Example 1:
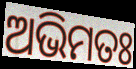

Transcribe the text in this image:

ଅଭିମତଃ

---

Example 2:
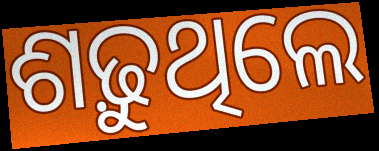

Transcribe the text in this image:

ଶଢ଼ୁଥିଲେ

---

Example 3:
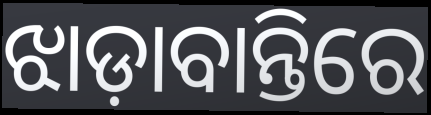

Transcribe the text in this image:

ଝାଡ଼ାବାନ୍ତିରେ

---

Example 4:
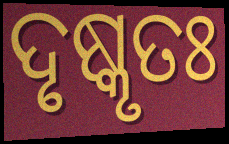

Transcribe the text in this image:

ଦୃଷ୍କୃତଃ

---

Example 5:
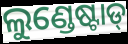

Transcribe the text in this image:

ଲୁଣ୍ଡେଷ୍ଟାଡ୍